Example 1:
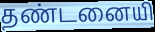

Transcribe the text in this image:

தண்டனையி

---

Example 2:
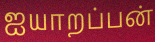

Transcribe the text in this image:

ஐயாறப்பன்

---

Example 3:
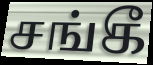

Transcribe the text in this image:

சங்கீ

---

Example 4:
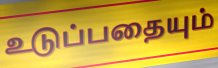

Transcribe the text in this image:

உடுப்பதையும்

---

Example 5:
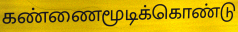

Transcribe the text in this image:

கண்ணைமூடிக்கொண்டு